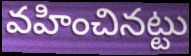
వహించినట్టు